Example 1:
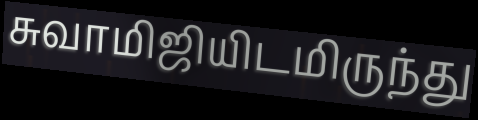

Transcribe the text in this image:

சுவாமிஜியிடமிருந்து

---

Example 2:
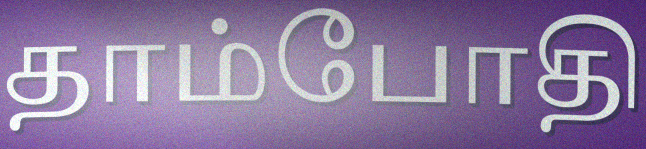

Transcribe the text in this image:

தாம்போதி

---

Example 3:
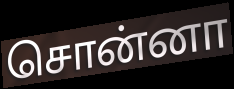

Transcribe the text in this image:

சொன்னா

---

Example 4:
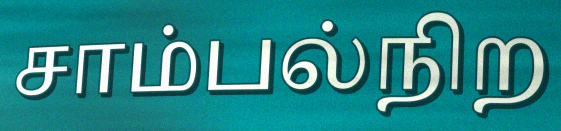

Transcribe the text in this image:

சாம்பல்நிற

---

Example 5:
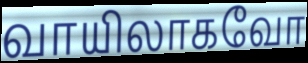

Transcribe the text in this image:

வாயிலாகவோ